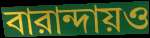
বারান্দায়ও